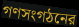
গণসংগঠনের